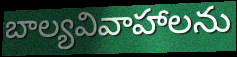
బాల్యవివాహాలను